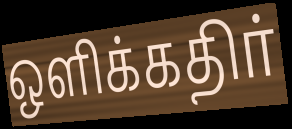
ஒளிக்கதிர்